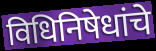
विधिनिषेधांचे